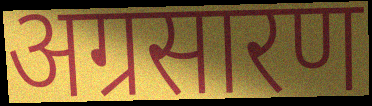
अग्रसारण